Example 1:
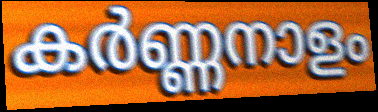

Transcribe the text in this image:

കർണ്ണനാളം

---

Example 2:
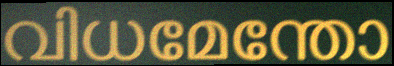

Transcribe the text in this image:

വിധമേന്തോ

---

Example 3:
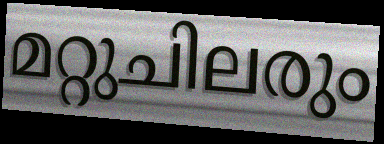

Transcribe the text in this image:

മറ്റുചിലരും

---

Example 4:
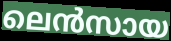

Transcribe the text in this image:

ലെൻസായ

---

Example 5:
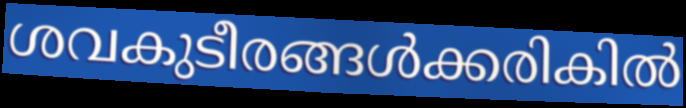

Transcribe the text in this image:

ശവകുടീരങ്ങൾക്കരികിൽ